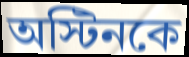
অস্টিনকে